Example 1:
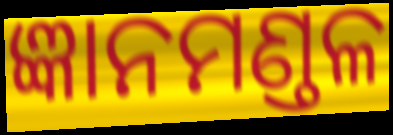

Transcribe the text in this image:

ଜ୍ଞାନମଣ୍ଡଳ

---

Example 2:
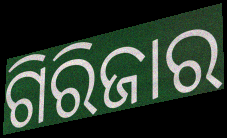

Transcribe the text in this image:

ଗିରିଜାର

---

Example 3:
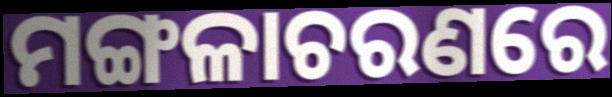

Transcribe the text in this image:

ମଙ୍ଗଳାଚରଣରେ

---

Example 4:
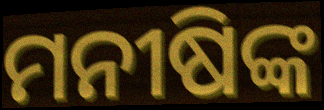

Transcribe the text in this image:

ମନୀଷିଙ୍କ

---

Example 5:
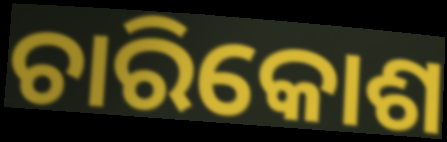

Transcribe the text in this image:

ଚାରିକୋଶ